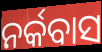
ନର୍କବାସ